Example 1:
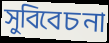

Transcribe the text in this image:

সুবিবেচনা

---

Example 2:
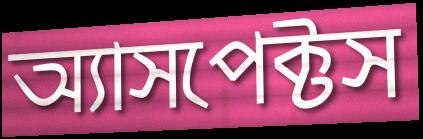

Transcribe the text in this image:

অ্যাসপেক্টস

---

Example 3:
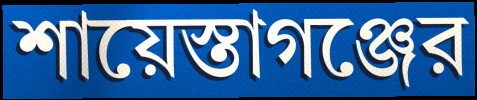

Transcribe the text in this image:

শায়েস্তাগঞ্জের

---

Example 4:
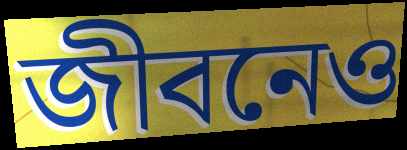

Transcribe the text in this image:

জীবনেও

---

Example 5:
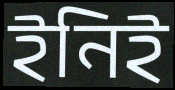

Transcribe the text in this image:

ইনিই